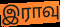
இராவு